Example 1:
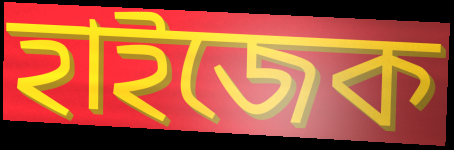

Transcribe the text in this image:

হাইজেক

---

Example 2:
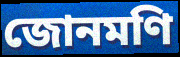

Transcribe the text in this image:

জোনমণি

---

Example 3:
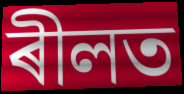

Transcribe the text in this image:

ৰীলত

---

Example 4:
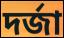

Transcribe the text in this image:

দৰ্জা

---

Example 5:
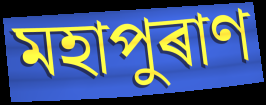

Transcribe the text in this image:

মহাপুৰাণ